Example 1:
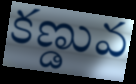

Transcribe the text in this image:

కణ్డువ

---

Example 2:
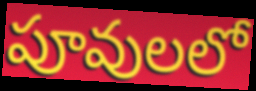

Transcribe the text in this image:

పూవులలో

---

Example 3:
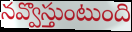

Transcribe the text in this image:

నవ్వొస్తుంటుంది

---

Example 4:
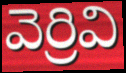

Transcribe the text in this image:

వెర్రివి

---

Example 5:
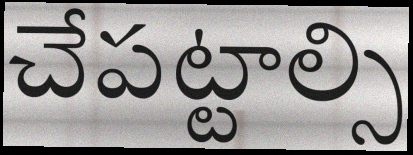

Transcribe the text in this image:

చేపట్టాల్సి